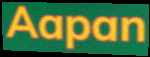
Aapan